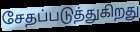
சேதப்படுத்துகிறது